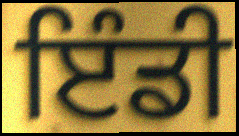
ਇੰਡੀ